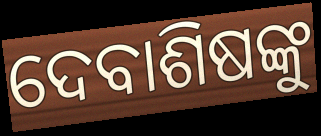
ଦେବାଶିଷଙ୍କୁ